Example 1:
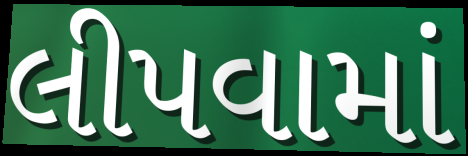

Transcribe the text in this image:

લીપવામાં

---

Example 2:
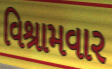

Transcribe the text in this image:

વિશ્રામવાર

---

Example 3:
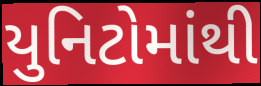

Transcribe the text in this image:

યુનિટોમાંથી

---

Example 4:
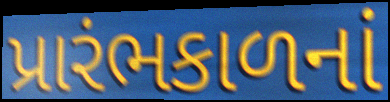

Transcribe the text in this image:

પ્રારંભકાળનાં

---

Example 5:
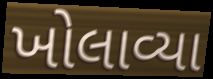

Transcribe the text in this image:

ખોલાવ્યા